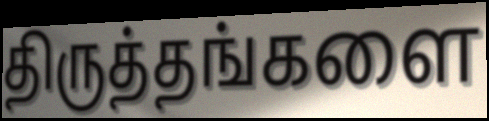
திருத்தங்களை